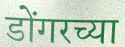
डोंगरच्या